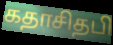
கதாசிதபி